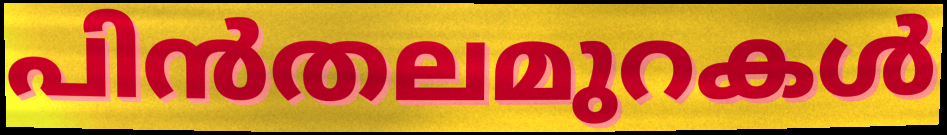
പിൻതലമുറകൾ